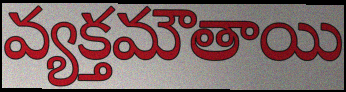
వ్యక్తమౌతాయి